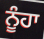
ਨੂੰਹਾ